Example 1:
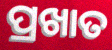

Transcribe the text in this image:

ପ୍ରଖାତ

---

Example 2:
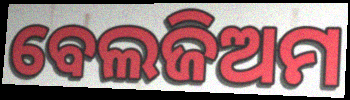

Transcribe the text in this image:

ବେଲଜିଅମ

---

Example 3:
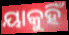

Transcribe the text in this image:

ୟାକୁହିଁ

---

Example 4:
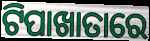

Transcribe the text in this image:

ଟିପାଖାତାରେ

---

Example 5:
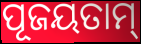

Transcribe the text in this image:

ପୂଜୟତାମ୍